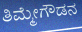
ತಿಮ್ಮೇಗೌಡನ